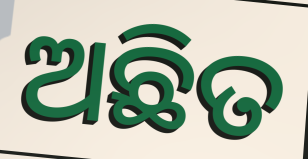
ଅଛିତ